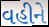
વહીને